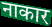
नाकार